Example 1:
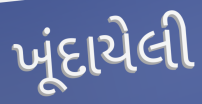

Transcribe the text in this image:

ખૂંદાયેલી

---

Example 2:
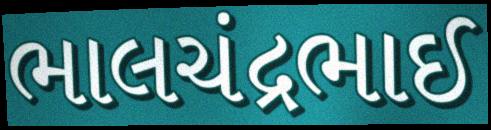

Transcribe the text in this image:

ભાલચંદ્રભાઈ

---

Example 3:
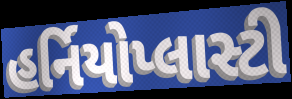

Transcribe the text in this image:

હર્નિયોપ્લાસ્ટી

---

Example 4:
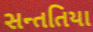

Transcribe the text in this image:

સન્તતિયા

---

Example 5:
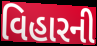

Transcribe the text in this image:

વિહારની